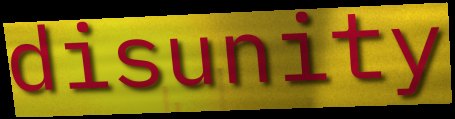
disunity